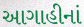
આગાહીનાં